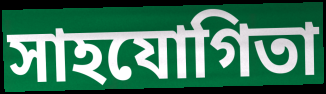
সাহযোগিতা